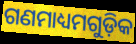
ଗଣମାଧ୍ୟମଗୁଡ଼ିକ